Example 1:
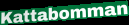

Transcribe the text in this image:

Kattabomman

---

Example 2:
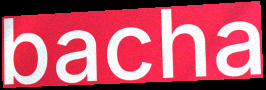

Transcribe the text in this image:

bacha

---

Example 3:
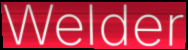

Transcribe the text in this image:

Welder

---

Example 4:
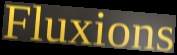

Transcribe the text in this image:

Fluxions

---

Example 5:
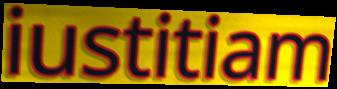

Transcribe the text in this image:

iustitiam